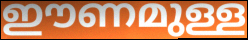
ഈണമുള്ള